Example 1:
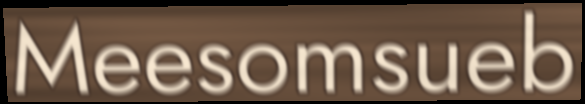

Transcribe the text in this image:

Meesomsueb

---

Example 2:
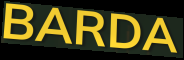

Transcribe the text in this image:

BARDA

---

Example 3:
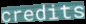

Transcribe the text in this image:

credits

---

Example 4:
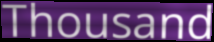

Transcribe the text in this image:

Thousand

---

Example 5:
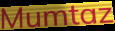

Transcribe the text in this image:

Mumtaz